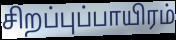
சிறப்புப்பாயிரம்